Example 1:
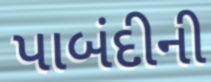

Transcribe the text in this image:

પાબંદીની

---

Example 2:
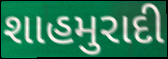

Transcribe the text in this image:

શાહમુરાદી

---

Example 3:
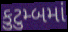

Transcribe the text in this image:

કુટુમ્બમાં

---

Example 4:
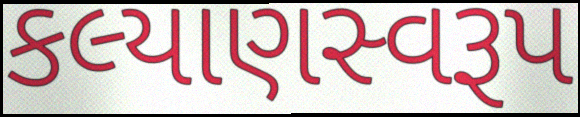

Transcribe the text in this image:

કલ્યાણસ્વરૂપ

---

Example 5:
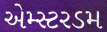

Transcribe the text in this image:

એમ્સ્ટરડમ